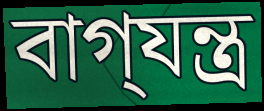
বাগ্‌যন্ত্র